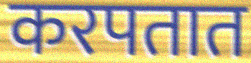
करपतात